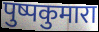
पुष्पकुमारा